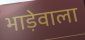
भाड़ेवाला